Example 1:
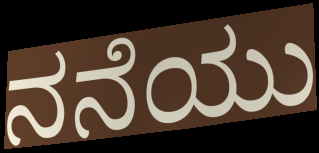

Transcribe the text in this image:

ನನೆಯು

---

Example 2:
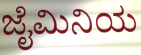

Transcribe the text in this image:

ಜೈಮಿನಿಯ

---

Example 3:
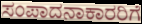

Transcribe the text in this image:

ಸಂಪಾದನಾಕಾರರಿಗೆ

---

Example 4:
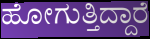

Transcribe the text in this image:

ಹೋಗುತ್ತಿದ್ದಾರೆ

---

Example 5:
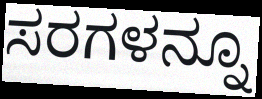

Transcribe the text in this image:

ಸರಗಳನ್ನೂ